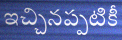
ఇచ్చినప్పటికీ